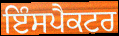
ਇੰਸਪੈਕਟਰ